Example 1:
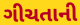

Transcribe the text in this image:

ગીચતાની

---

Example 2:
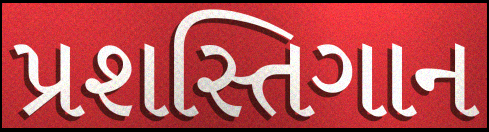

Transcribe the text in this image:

પ્રશસ્તિગાન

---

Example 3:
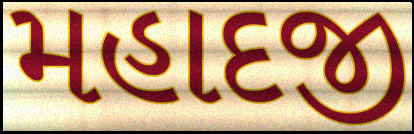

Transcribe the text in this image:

મહાદજી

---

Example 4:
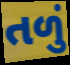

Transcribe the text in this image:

તળું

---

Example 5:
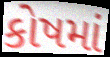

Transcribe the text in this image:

કોષમાં